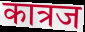
कात्रज